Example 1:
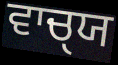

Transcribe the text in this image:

ਵਾਚੑਯ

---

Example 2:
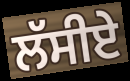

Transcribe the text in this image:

ਲੱਸੀਏ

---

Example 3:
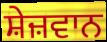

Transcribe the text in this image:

ਸ਼ੇਜ਼ਵਾਨ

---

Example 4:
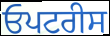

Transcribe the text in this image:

ਓਪਟਰੀਸ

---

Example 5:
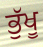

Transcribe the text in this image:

ਭੁੱਖੂ